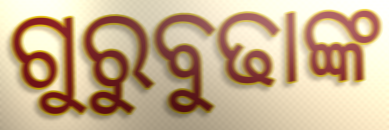
ଗୁରୁବୁଢାଙ୍କ